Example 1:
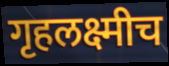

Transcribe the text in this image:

गृहलक्ष्मीच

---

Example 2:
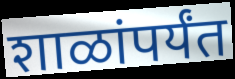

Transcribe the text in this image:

शाळांपर्यंत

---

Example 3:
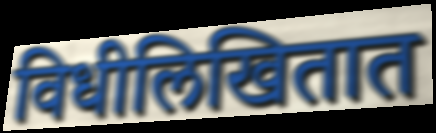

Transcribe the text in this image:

विधीलिखितात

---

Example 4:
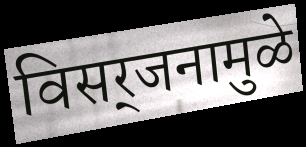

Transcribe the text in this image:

विसर्जनामुळे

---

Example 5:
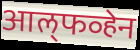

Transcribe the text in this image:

आल्फव्हेन